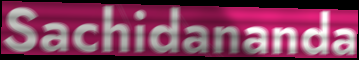
Sachidananda